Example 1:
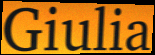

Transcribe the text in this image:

Giulia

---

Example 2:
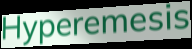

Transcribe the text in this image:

Hyperemesis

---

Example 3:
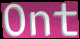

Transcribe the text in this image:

Ont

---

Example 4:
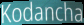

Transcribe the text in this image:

Kodancha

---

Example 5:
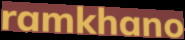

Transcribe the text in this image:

ramkhano